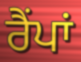
ਰੈਂਪਾਂ